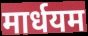
मार्धयम